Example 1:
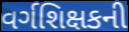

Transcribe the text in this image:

વર્ગશિક્ષકની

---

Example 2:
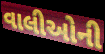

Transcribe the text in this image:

વાલીઓની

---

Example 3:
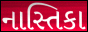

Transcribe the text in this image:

નાસ્તિકા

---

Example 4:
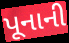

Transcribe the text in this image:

પૂનાની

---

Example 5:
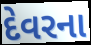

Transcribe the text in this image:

દેવરના